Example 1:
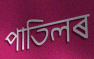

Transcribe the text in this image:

পাতিলৰ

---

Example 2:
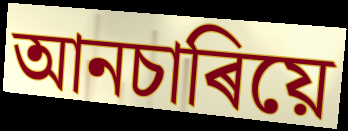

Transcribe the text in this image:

আনচাৰিয়ে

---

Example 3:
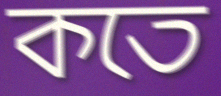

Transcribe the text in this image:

কতে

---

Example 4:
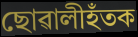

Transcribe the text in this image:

ছোৱালীহঁতক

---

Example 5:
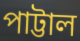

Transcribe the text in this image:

পাট্টাল